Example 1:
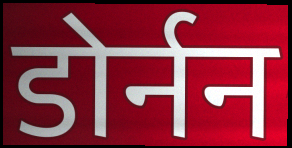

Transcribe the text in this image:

डोर्नन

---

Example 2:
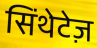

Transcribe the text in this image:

सिंथेटेज़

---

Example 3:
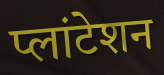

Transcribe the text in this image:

प्लांटेशन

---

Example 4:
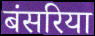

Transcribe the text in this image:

बंसरिया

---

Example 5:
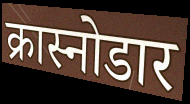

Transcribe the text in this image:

क्रास्नोडार